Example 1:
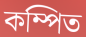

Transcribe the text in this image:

কম্পিত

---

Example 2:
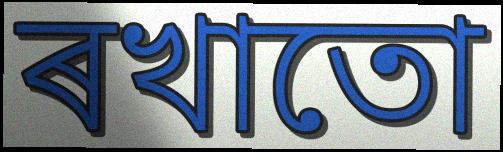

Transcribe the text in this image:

ৰখাতো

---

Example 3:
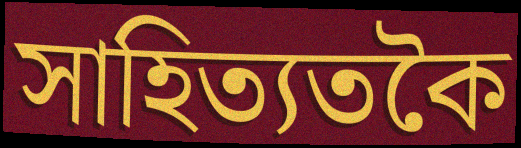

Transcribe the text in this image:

সাহিত্যতকৈ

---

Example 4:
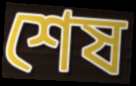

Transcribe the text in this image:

শেষ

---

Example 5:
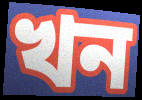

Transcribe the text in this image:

খন